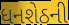
ધનશેઠની